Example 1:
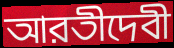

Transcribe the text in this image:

আরতীদেবী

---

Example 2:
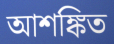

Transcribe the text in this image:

আশঙ্কিত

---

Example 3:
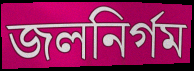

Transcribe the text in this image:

জলনির্গম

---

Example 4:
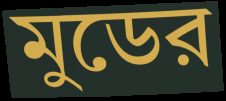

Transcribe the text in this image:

মুডের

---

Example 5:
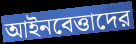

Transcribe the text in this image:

আইনবেত্তাদের